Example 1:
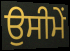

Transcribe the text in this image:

ਉਸੀਮੇਂ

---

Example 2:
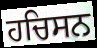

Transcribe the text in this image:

ਹਚਿਸਨ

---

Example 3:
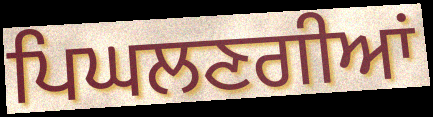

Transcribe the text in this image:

ਪਿਘਲਣਗੀਆਂ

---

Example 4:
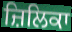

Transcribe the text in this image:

ਜ਼ਿਲਿਕਾ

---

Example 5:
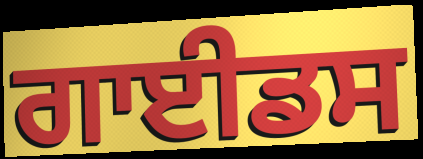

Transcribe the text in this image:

ਗਾਈਡਸ